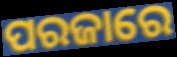
ପରଜାରେ